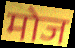
मोज